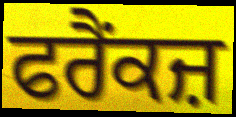
ਫਰੈਂਕਜ਼